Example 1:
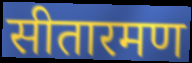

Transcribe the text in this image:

सीतारमण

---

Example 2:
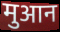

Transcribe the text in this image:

मुआन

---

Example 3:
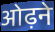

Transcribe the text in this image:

ओढ़ने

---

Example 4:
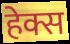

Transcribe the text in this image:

हेक्स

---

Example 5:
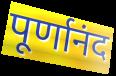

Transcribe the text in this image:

पूर्णानंद